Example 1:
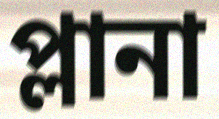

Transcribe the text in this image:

প্লানা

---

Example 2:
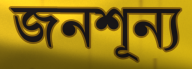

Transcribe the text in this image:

জনশূন্য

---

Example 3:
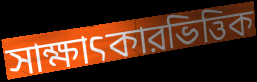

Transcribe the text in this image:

সাক্ষাৎকারভিত্তিক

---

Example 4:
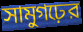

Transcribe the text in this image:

সামুগঢ়ের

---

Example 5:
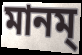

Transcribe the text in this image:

মানম্